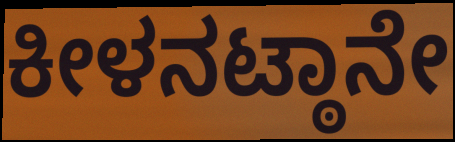
ಕೀಳನಟ್ಠಾನೇ